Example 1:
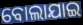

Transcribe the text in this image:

ବୋଲାଯାଇ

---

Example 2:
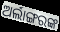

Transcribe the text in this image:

ଅର୍ଲାଙ୍ଗରଙ୍କ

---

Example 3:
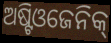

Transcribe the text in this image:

ଅଷ୍ଟିଓଜେନିକ୍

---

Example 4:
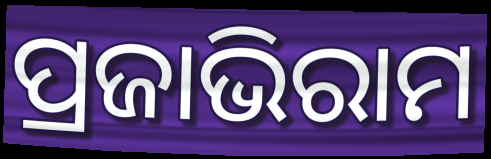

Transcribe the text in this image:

ପ୍ରଜାଭିରାମ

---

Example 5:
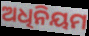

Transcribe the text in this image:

ଅଧିନିୟମ